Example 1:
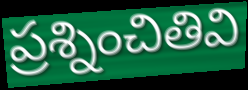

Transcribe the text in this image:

ప్రశ్నించితివి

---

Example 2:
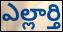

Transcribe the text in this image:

ఎల్లార్తి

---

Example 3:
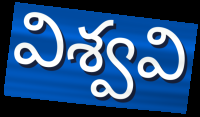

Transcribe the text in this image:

విశ్వవి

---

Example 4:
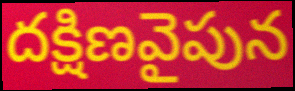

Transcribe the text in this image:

దక్షిణవైపున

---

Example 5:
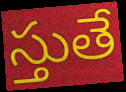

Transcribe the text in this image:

స్తుతే